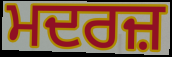
ਮਦਰਜ਼